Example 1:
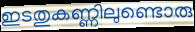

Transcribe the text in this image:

ഇടതുകണ്ണിലുണ്ടൊരു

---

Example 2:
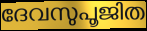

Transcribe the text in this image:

ദേവസുപൂജിത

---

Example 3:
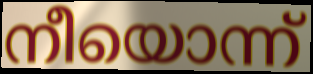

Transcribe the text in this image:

നീയൊന്ന്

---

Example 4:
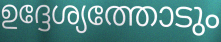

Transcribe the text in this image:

ഉദ്ദേശ്യത്തോടും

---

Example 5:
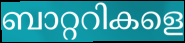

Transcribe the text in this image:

ബാറ്ററികളെ